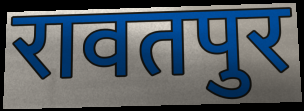
रावतपुर